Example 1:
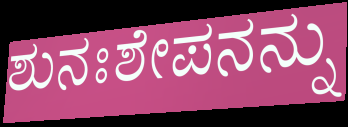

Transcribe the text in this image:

ಶುನಃಶೇಪನನ್ನು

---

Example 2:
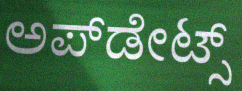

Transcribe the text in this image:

ಅಪ್‌ಡೇಟ್ಸ್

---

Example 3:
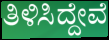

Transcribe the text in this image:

ತಿಳಿಸಿದ್ದೇವೆ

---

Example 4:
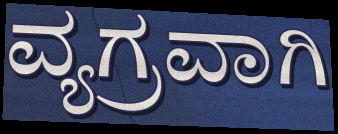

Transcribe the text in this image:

ವ್ಯಗ್ರವಾಗಿ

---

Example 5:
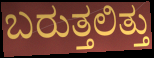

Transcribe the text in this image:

ಬರುತ್ತಲಿತ್ತು